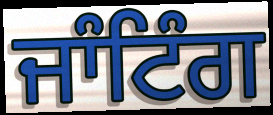
ਜਾੰਟਿੰਗ